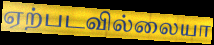
ஏற்படவில்லையா